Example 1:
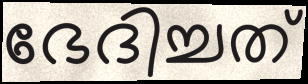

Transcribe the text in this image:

ഭേദിച്ചത്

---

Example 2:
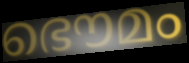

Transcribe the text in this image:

ഭൌമം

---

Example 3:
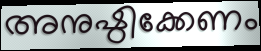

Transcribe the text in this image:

അനുഷ്ഠിക്കേണം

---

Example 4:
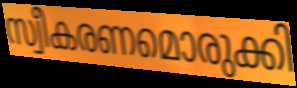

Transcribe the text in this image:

സ്വീകരണമൊരുക്കി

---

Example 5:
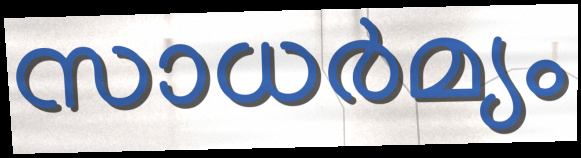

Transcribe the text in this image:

സാധർമ്യം